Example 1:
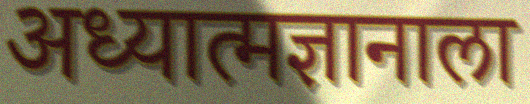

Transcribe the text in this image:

अध्यात्मज्ञानाला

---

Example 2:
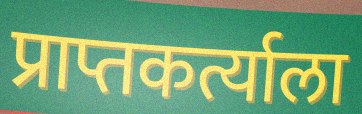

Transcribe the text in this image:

प्राप्तकर्त्याला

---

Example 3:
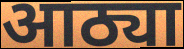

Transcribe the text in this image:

आठ्या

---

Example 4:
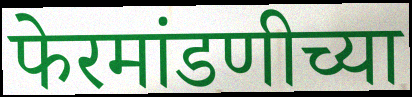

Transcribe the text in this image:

फेरमांडणीच्या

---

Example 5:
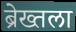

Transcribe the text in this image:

ब्रेख्तला